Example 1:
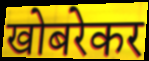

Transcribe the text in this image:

खोबरेकर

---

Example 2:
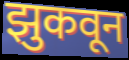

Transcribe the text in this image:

झुकवून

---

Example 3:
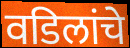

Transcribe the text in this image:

वडिलांचे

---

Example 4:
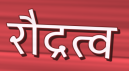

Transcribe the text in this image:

रौद्रत्व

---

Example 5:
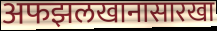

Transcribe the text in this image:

अफझलखानासारखा